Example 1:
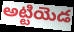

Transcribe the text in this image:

అట్టియెడ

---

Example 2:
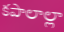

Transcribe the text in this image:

కపాలాల్లా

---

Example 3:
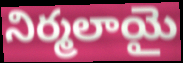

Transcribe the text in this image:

నిర్మలాయై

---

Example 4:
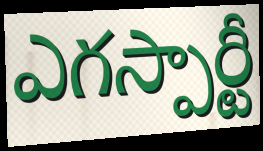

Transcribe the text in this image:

ఎగస్పార్టీ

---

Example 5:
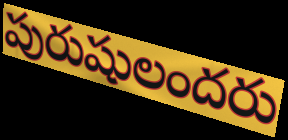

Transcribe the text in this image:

పురుషులందరు